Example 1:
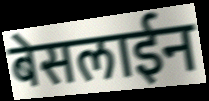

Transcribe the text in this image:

बेसलाईन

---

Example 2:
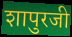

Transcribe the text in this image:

शापुरजी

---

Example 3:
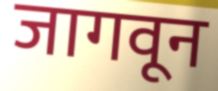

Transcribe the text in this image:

जागवून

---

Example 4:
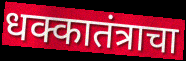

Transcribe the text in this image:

धक्कातंत्राचा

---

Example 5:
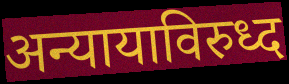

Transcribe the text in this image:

अन्यायाविरुध्द